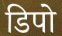
डिपो